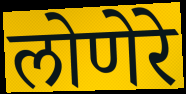
लोणेरे